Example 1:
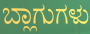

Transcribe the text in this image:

ಬ್ಲಾಗುಗಳು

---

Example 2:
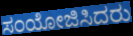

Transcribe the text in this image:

ಸಂಯೋಜಿಸಿದರು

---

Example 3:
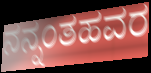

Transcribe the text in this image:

ನನ್ನಂತಹವರ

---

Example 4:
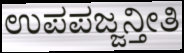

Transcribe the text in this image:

ಉಪಪಜ್ಜನ್ತೀತಿ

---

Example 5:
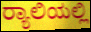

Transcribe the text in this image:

ರ‍್ಯಾಲಿಯಲ್ಲಿ